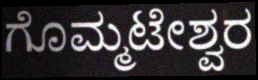
ಗೊಮ್ಮಟೇಶ್ವರ